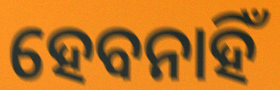
ହେବନାହିଁ